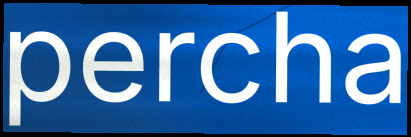
percha